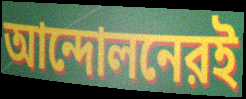
আন্দোলনেরই